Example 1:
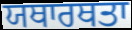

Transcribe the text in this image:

ਯਥਾਰਥਤਾ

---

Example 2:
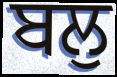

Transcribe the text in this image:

ਬਲੁ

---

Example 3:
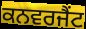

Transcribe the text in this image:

ਕਨਵਰਜੈਂਟ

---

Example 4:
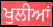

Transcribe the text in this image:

ਖੁਲੀਆਂ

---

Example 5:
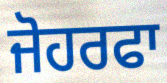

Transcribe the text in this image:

ਜੋਹਰਫਾ